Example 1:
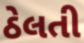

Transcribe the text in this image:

ઠેલતી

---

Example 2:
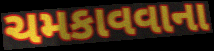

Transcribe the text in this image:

ચમકાવવાના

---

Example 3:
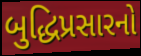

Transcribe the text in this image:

બુદ્ધિપ્રસારનો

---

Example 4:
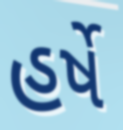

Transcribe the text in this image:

હર્ષે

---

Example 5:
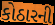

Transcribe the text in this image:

કોઠારની